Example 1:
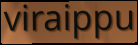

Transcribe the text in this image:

viraippu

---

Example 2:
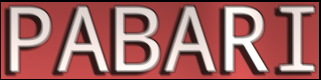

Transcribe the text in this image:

PABARI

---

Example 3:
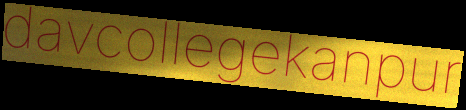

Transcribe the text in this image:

davcollegekanpur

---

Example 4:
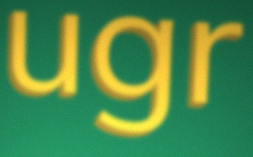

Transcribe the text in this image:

ugr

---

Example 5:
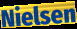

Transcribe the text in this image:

Nielsen